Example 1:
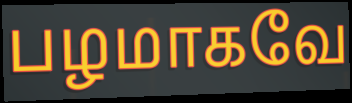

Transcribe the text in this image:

பழமாகவே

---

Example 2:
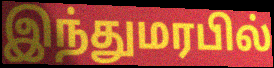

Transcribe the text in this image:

இந்துமரபில்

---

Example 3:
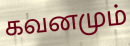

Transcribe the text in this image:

கவனமும்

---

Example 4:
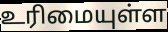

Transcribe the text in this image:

உரிமையுள்ள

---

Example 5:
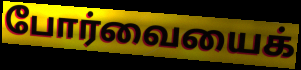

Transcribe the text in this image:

போர்வையைக்